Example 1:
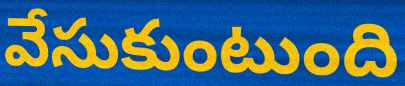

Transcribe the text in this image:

వేసుకుంటుంది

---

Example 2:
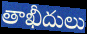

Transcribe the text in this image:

తాఖీదులు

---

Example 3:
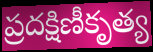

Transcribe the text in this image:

ప్రదక్షిణీకృత్య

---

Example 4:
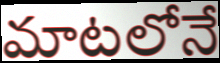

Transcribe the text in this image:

మాటలోనే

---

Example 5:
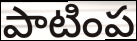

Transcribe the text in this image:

పాటింప